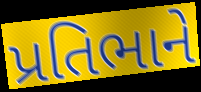
પ્રતિભાને